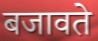
बजावते